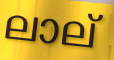
ലാല്